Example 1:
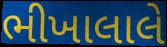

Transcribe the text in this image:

ભીખાલાલે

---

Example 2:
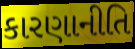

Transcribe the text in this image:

કારણાનીતિ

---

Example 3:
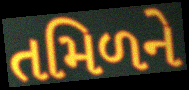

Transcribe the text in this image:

તમિળને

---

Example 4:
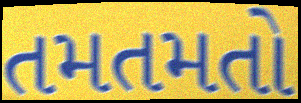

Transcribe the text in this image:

તમતમતો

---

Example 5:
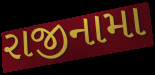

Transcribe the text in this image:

રાજીનામા